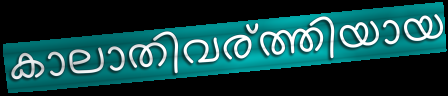
കാലാതിവര്ത്തിയായ